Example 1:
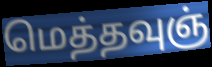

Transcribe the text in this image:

மெத்தவுஞ்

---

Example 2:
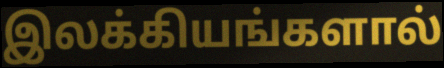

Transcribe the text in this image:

இலக்கியங்களால்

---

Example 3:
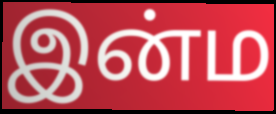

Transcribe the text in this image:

இன்ம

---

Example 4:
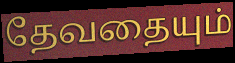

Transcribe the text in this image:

தேவதையும்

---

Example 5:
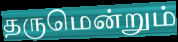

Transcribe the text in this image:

தருமென்றும்